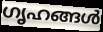
ഗൃഹങ്ങൾ